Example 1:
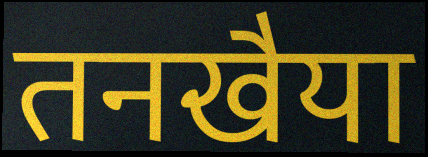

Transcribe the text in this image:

तनखैया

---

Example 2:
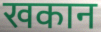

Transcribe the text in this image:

खकान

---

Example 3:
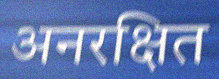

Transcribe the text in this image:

अनरक्षित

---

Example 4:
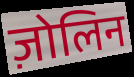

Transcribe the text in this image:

ज़ोलिन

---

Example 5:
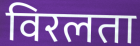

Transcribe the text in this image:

विरलता